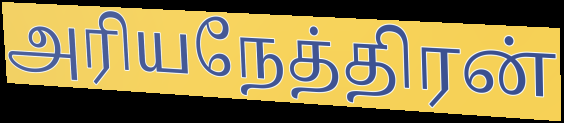
அரியநேத்திரன்